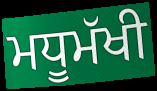
ਮਧੂਮੱਖੀ